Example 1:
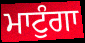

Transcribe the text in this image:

ਮਾਟੁੰਗਾ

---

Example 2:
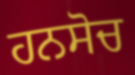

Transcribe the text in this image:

ਹਨਸੋਚ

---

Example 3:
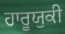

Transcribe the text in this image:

ਹਾਰੂਯੁਕੀ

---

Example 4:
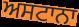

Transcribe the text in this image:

ਅਸਟਾਨਾ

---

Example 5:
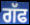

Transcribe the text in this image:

ਗੱਫ